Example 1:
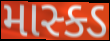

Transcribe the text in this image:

માસ્ક્ડ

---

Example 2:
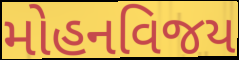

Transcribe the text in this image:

મોહનવિજય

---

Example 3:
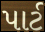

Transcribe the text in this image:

પાર્ટ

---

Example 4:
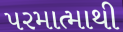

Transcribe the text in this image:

પરમાત્માથી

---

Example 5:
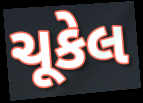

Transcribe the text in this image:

ચૂકેલ